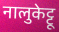
नालुकेट्टू